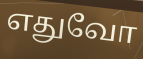
எதுவோ